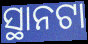
ସ୍ଥାନଟା